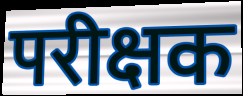
परीक्षक